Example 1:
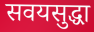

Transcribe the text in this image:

सवयसुद्धा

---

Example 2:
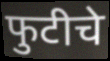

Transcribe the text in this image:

फुटीचे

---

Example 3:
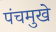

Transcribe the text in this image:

पंचमुखे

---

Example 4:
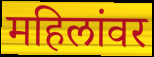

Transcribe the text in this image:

महिलांवर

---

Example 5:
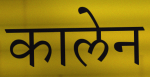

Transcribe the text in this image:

कालेन